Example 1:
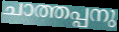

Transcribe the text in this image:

ചാത്തപ്പനു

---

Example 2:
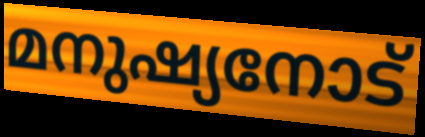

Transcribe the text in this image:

മനുഷ്യനോട്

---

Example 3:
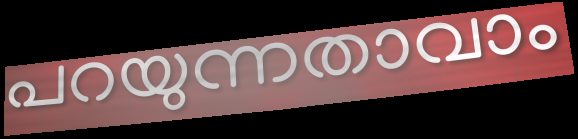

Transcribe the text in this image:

പറയുന്നതാവാം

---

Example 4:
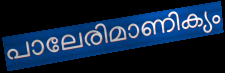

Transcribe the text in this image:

പാലേരിമാണിക്യം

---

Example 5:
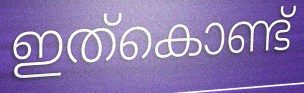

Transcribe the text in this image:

ഇത്കൊണ്ട്